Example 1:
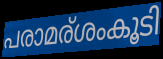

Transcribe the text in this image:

പരാമര്ശംകൂടി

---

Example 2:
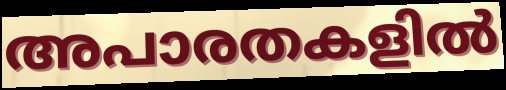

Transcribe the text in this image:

അപാരതകളിൽ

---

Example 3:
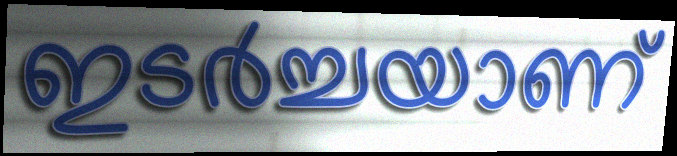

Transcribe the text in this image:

ഇടർച്ചയാണ്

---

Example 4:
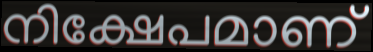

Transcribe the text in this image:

നിക്ഷേപമാണ്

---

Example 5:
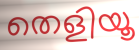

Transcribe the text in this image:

തെളിയൂ